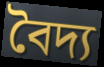
বৈদ্য